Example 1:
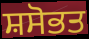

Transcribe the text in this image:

ਸ਼ਸੋਭਤ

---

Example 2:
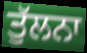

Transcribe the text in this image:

ਤੁੱਲਨਾ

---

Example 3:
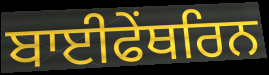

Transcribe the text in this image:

ਬਾਈਫੇਂਥਰਿਨ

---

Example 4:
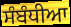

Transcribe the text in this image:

ਸੰਬੰਧੀਆ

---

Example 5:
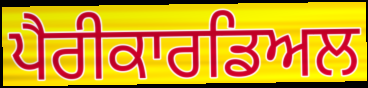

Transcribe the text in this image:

ਪੈਰੀਕਾਰਡਿਅਲ